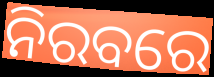
ନିରବରେ